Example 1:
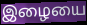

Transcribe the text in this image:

இழையை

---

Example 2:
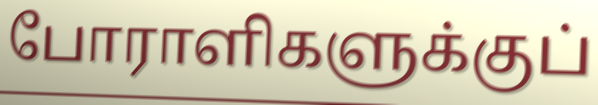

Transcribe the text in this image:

போராளிகளுக்குப்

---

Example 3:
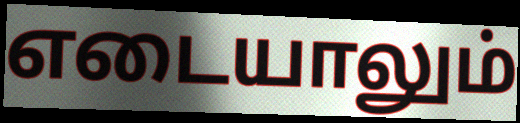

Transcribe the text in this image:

எடையாலும்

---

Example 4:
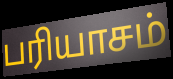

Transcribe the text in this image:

பரியாசம்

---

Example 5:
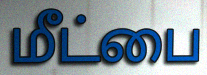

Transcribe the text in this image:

மீட்பை